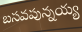
బసవపున్నయ్య